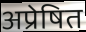
अप्रेषित